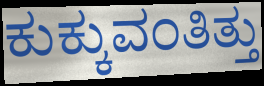
ಕುಕ್ಕುವಂತಿತ್ತು